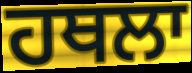
ਹਥਲਾ